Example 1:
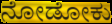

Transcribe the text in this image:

ನೋಡೋಕು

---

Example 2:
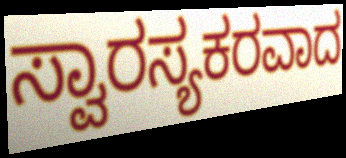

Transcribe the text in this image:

ಸ್ವಾರಸ್ಯಕರವಾದ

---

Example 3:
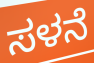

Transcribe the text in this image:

ಸಳನೆ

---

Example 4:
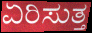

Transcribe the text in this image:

ಏರಿಸುತ್ತ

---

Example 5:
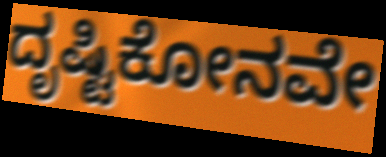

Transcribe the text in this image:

ದೃಷ್ಟಿಕೋನವೇ